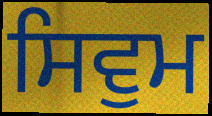
ਸਿਵੁਮ